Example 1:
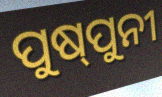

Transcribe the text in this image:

ପୁଷ୍‌ପୁନୀ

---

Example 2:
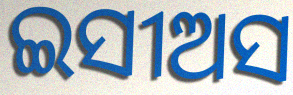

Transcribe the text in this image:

ଇସୀଅସ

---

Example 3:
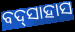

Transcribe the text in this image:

ବଦ୍‌ସାହାସ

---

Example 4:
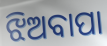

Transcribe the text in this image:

ଝିଅବାପା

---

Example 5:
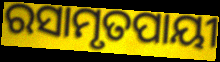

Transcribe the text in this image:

ରସାମୃତପାୟୀ